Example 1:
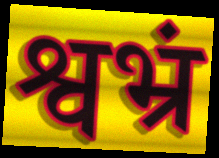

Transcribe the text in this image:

श्वभ्रं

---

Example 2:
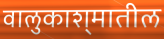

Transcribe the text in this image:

वालुकाश्मातील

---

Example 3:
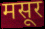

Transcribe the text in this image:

मसूर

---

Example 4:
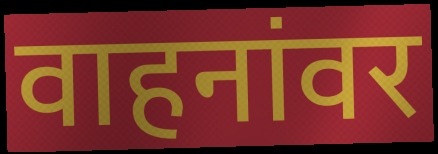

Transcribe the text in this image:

वाहनांवर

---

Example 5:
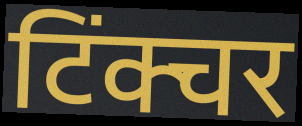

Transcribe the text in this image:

टिंक्चर